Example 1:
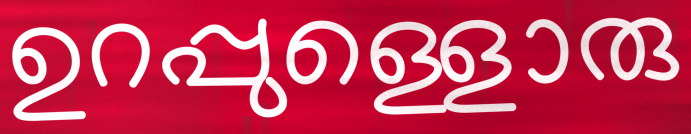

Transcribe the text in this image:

ഉറപ്പുള്ളൊരു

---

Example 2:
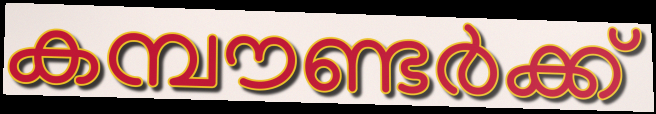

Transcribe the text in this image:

കമ്പൗണ്ടർക്ക്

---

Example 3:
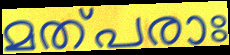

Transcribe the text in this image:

മത്പരാഃ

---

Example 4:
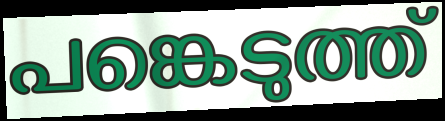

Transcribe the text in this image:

പങ്കെടുത്ത്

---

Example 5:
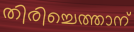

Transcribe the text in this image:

തിരിച്ചെത്താന്